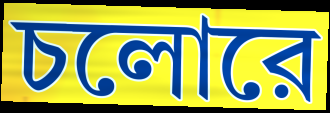
চলোরে